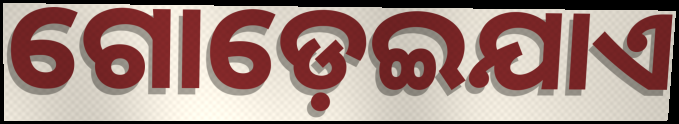
ଗୋଡ଼େଇଯାଏ